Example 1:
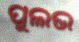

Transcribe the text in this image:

ପୁଲଭ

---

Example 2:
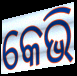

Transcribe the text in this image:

କେଭି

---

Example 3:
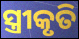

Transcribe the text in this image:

ସ୍ତ୍ରୀକୃତି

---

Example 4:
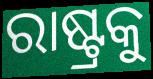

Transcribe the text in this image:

ରାଷ୍ଟ୍ରକୁ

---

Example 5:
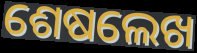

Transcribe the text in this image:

ଶେଷଲେଖ